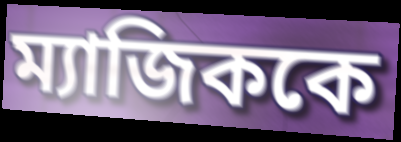
ম্যাজিককে